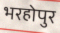
भरहोपुर